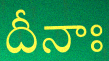
దీనాః